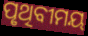
ପୃଥିବୀମୟ